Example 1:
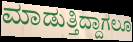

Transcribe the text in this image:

ಮಾಡುತ್ತಿದ್ದಾಗಲೂ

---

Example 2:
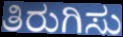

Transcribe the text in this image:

ತಿರುಗಿಸು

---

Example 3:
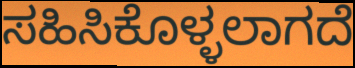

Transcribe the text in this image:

ಸಹಿಸಿಕೊಳ್ಳಲಾಗದೆ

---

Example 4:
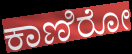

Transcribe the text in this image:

ಕಾಣಿರೋ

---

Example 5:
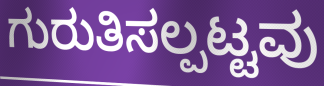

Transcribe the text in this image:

ಗುರುತಿಸಲ್ಪಟ್ಟವು